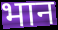
भान